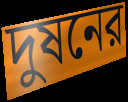
দুষনের